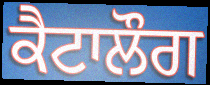
ਕੈਟਾਲੌਗ